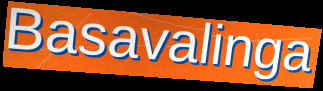
Basavalinga